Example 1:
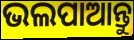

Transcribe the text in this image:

ଭଲପାଆନ୍ତୁ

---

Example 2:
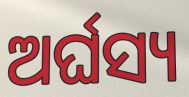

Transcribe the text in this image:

ଅର୍ଘସ୍ୟ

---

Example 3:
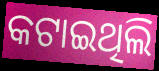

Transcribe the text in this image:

କଟାଇଥିଲି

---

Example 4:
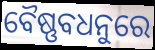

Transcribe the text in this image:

ବୈଷ୍ଣବଧନୁରେ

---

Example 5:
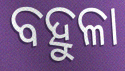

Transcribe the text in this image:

ବହୁଳା